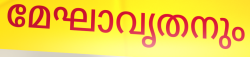
മേഘാവൃതനും